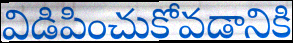
విడిపించుకోవడానికి